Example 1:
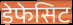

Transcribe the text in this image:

डेफेसिट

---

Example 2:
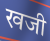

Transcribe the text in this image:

खजी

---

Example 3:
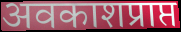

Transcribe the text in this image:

अवकाशप्राप्त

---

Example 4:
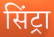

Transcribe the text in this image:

सिंट्रा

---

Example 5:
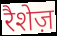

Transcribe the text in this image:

रैशेज़